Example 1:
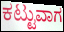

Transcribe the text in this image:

ಕಟ್ಟುವಾಗ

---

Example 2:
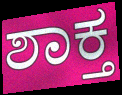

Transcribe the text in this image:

ಶಾಕ್ತ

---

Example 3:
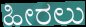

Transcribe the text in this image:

ಹೀರಲು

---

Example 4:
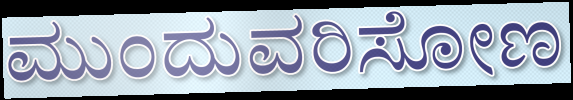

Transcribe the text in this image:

ಮುಂದುವರಿಸೋಣ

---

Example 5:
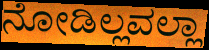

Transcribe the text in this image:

ನೋಡಿಲ್ಲವಲ್ಲಾ